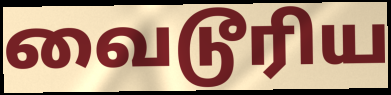
வைடூரிய